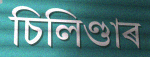
চিলিণ্ডাৰ